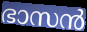
ഭാസൻ